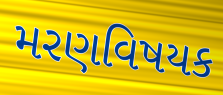
મરણવિષયક